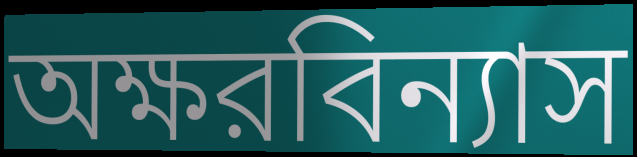
অক্ষরবিন্যাস